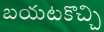
బయటకొచ్చి